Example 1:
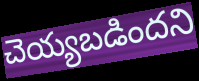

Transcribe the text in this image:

చెయ్యబడిందని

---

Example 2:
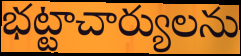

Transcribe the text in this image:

భట్టాచార్యులను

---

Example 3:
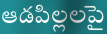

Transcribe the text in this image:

ఆడపిల్లలపై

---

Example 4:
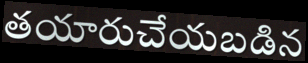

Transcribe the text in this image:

తయారుచేయబడిన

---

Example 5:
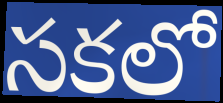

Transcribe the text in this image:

సకలో